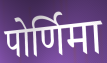
पोर्णिमा